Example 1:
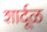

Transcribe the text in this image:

शार्दूळ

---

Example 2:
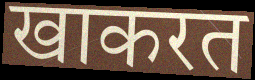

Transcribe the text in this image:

खाकरत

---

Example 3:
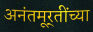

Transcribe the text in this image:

अनंतमूर्तींच्या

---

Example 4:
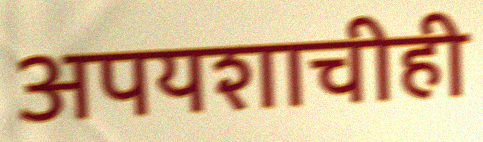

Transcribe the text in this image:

अपयशाचीही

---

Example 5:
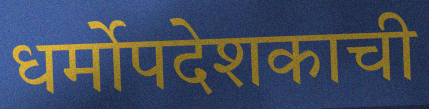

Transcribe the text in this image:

धर्मोपदेशकाची